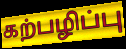
கற்பழிப்பு